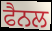
ਫੈਨਲ